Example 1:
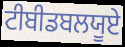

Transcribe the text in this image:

ਟੀਬੀਡਬਲਯੂਏ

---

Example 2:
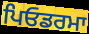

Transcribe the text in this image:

ਪਿਓਡਰਮਾ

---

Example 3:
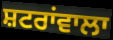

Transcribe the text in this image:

ਸ਼ਟਰਾਂਵਾਲਾ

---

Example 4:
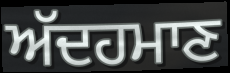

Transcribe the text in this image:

ਅੱਦਹਮਾਣ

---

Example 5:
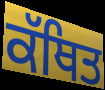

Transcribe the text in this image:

ਕੱਥਿਤ